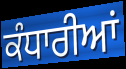
ਕੰਧਾਰੀਆਂ